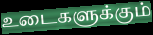
உடைகளுக்கும்